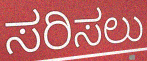
ಸರಿಸಲು